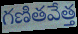
గణితవేత్త